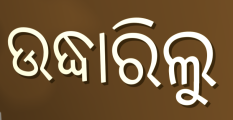
ଉଦ୍ଧାରିଲୁ